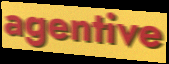
agentive